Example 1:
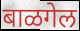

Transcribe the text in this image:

बाळगेल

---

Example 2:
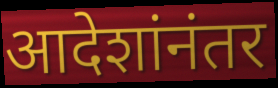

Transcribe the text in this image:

आदेशांनंतर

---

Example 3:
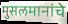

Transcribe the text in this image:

मुसलमानांचे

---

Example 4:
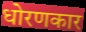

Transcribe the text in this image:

धोरणकार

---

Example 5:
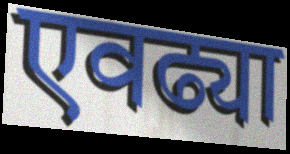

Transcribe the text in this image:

एवढ्या